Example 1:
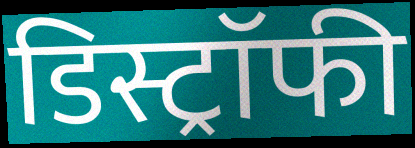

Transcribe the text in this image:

डिस्ट्रॉफी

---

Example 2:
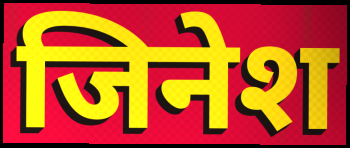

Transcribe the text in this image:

जिनेश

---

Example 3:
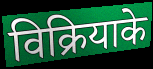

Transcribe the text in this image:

विक्रियाके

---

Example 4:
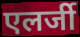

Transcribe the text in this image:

एलर्जी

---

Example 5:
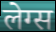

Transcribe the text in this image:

लेग्स